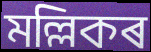
মল্লিকৰ